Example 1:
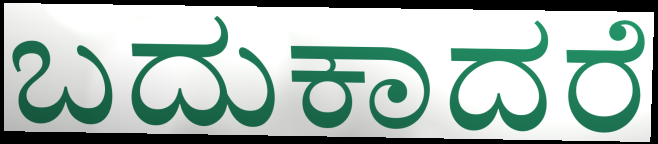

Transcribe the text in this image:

ಬದುಕಾದರೆ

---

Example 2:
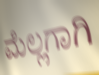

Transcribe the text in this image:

ಮೆಲ್ಲಗಾಗಿ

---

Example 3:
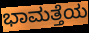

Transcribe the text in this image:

ಭಾಮತ್ತೆಯ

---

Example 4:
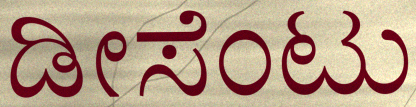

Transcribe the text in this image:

ಡೀಸೆಂಟು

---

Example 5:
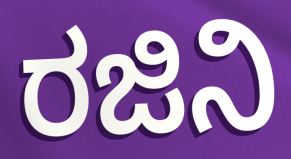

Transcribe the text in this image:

ರಜಿನಿ